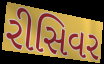
રીસિવર